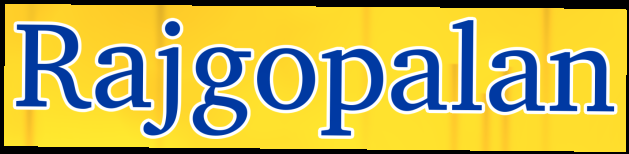
Rajgopalan